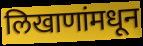
लिखाणांमधून